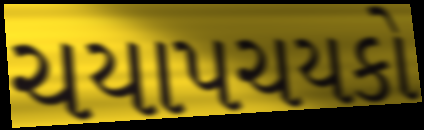
ચયાપચયકો